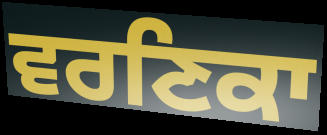
ਵਰਣਿਕਾ